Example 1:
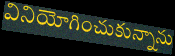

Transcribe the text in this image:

వినియోగించుకున్నాను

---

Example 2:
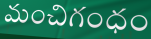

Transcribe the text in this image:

మంచిగంధం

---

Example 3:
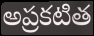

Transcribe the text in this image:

అప్రకటిత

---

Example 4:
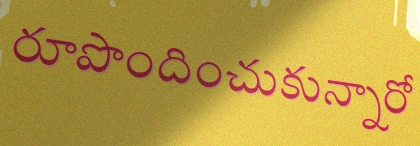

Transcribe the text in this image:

రూపొందించుకున్నారో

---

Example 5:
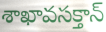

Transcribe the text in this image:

శాఖావసక్తాన్